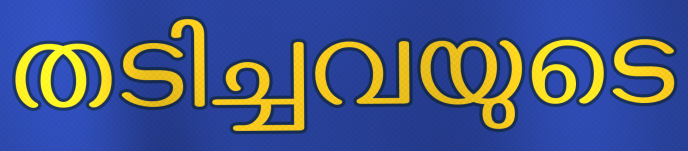
തടിച്ചവയുടെ